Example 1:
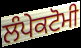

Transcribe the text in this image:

ਲੰਪੇਕਟੋਮੀ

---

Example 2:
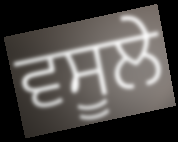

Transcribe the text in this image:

ਵਸੂਲੇ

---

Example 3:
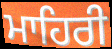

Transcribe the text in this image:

ਮਾਹਿਰੀ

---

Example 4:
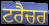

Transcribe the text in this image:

ਟਰੈਚਰ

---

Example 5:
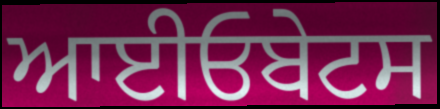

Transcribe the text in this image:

ਆਈਓਬੇਟਸ